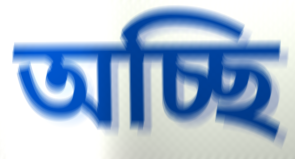
অচ্ছি